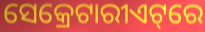
ସେକ୍ରେଟାରୀଏଟ୍‌ରେ